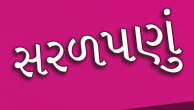
સરળપણું